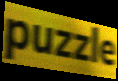
puzzle